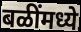
बळींमध्ये